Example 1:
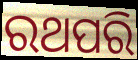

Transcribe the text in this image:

ରଥପରି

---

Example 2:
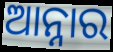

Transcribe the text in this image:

ଆନ୍ନାର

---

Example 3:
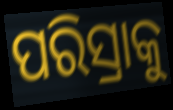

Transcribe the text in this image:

ପରିସ୍ରାକୁ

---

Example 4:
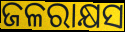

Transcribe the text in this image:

ଜଳରାକ୍ଷସ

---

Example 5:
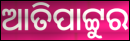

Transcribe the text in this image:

ଆତିପାଟ୍ଟୁର